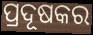
ପ୍ରଦୂଷକର